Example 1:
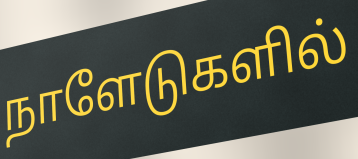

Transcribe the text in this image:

நாளேடுகளில்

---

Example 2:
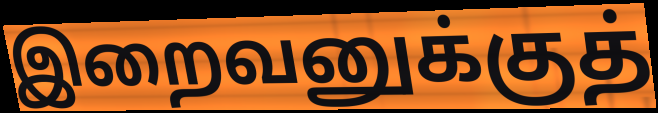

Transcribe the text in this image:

இறைவனுக்குத்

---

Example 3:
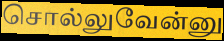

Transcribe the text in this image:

சொல்லுவேன்னு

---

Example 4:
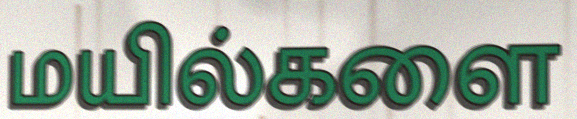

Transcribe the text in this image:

மயில்களை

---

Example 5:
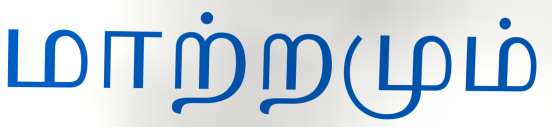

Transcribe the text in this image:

மாற்றமும்